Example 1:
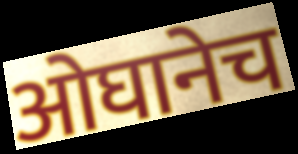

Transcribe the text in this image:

ओघानेच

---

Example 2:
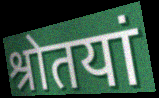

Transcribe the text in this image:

श्रोतयां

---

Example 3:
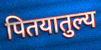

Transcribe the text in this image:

पितयातुल्य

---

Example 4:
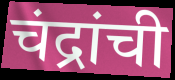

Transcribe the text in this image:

चंद्रांची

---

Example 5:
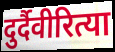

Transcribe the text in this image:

दुर्दैवीरित्या